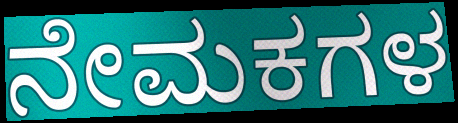
ನೇಮಕಗಳ